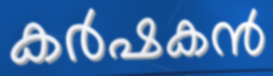
കർഷകൻ